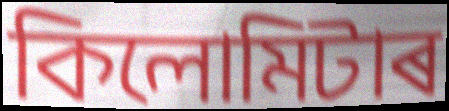
কিলোমিটাৰ